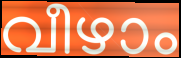
വീഴാം